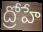
ద్రోహే